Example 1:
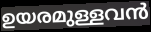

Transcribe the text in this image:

ഉയരമുള്ളവൻ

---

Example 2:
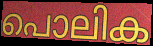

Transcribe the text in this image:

പൊലിക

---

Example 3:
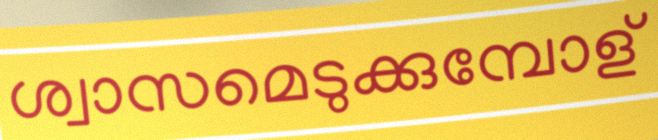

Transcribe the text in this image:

ശ്വാസമെടുക്കുമ്പോള്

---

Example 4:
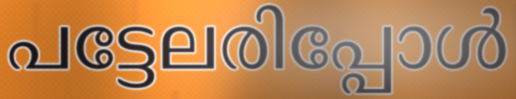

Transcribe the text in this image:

പട്ടേലരിപ്പോൾ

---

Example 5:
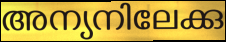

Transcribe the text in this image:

അന്യനിലേക്കു